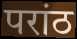
परांठ